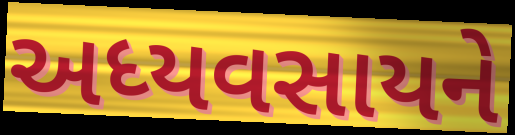
અધ્યવસાયને